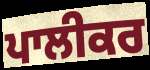
ਪਾਲੀਕਰ